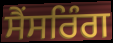
ਸੈਂਸਰਿੰਗ